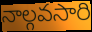
నాల్గవసారి